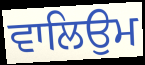
ਵਾਲਿਉਮ